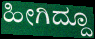
ಹೀಗಿದ್ದೂ